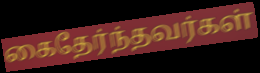
கைதேர்ந்தவர்கள்